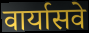
वार्यासवे